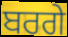
ਬਰਗੇ